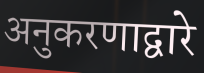
अनुकरणाद्वारे